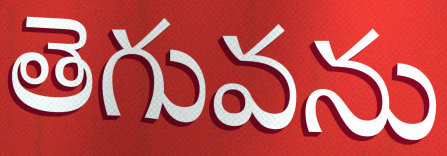
తెగువను